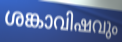
ശങ്കാവിഷവും